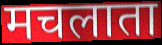
मचलाता